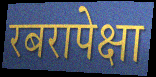
रबरापेक्षा